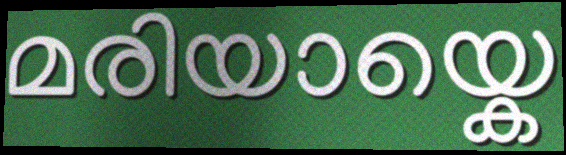
മരിയായ്കെ